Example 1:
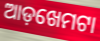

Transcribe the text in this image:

ଆଡ଼ଖେମଟା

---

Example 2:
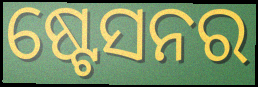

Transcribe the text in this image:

ଷ୍ଟେସନର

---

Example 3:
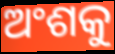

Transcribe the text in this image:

ଅଂଶକୁ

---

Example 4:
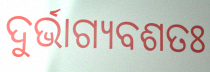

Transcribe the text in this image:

ଦୁର୍ଭାଗ୍ୟବଶତଃ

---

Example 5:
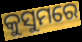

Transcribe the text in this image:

କୁସୁମରେ